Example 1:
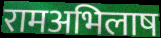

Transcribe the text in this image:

रामअभिलाष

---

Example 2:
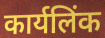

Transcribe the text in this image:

कार्यलिंक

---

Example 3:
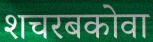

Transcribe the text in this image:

शचरबकोवा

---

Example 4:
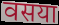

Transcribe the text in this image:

वसया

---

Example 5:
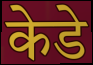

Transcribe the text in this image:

केडे